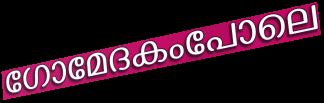
ഗോമേദകംപോലെ